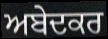
ਅਬੇਦਕਰ